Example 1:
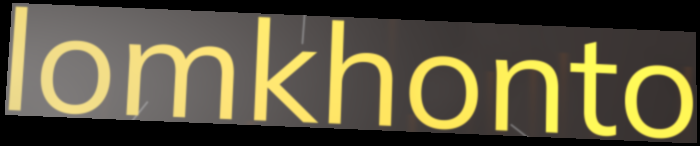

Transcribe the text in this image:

lomkhonto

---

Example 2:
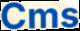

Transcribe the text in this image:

Cms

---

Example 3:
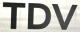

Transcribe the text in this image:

TDV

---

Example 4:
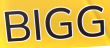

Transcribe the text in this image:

BIGG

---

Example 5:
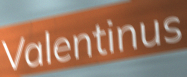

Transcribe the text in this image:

Valentinus